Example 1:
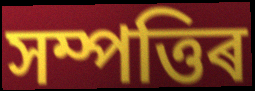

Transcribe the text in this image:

সম্পত্তিৰ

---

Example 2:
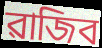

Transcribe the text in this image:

ৱাজিব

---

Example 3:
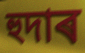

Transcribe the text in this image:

হুদাৰ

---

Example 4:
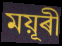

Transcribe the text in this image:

ময়ূৰী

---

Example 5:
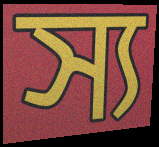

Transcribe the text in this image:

স্য